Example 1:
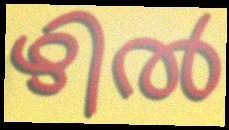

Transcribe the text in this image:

ഴിൽ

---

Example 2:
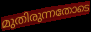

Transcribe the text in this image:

മുതിരുന്നതോടെ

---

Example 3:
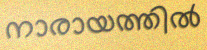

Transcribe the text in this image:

നാരായത്തിൽ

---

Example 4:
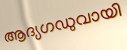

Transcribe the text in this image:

ആദ്യഗഡുവായി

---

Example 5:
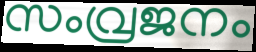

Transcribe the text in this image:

സംവ്രജനം